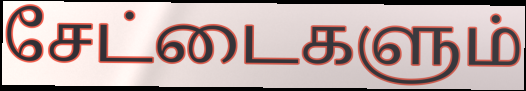
சேட்டைகளும்